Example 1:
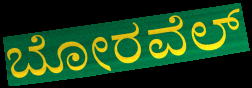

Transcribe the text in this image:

ಬೋರವೆಲ್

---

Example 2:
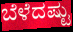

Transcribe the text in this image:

ಬೆಳೆದಷ್ಟು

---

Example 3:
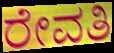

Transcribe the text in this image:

ರೇವತಿ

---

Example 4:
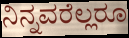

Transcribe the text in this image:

ನಿನ್ನವರೆಲ್ಲರೂ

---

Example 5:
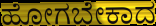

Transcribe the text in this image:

ಹೋಗಬೇಕಾದ